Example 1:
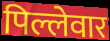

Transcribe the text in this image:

पिल्लेवार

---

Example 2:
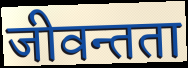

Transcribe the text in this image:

जीवन्तता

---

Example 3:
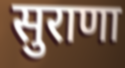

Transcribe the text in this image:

सुराणा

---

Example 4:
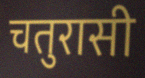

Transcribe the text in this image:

चतुरासी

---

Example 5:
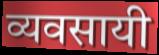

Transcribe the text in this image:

व्यवसायी